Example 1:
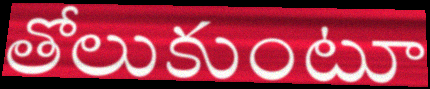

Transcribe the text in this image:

తోలుకుంటూ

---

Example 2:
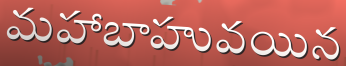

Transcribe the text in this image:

మహాబాహువయిన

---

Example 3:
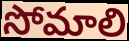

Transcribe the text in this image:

సోమాలి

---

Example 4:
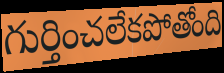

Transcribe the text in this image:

గుర్తించలేకపోతోంది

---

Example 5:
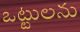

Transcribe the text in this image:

ఒట్టులను